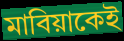
মাবিয়াকেই